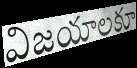
విజయాలకూ